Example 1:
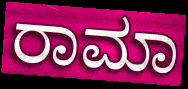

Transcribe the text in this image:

ರಾಮಾ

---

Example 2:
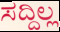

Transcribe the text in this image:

ಸದ್ದಿಲ್ಲ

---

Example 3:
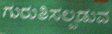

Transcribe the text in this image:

ಗುರುತಿಸಲ್ಪಡುವ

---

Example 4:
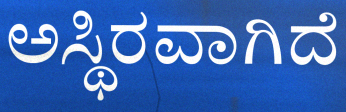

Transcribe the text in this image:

ಅಸ್ಥಿರವಾಗಿದೆ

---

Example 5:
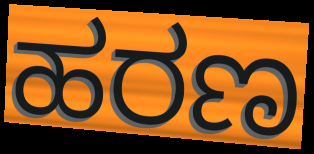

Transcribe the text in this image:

ಹರಣ